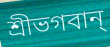
শ্রীভগবান্